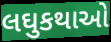
લઘુકથાઓ